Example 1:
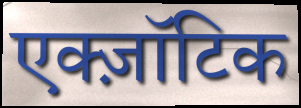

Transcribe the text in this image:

एक्ज़ॉटिक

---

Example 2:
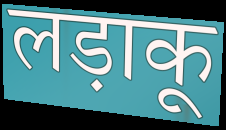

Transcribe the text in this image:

लड़ाकू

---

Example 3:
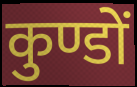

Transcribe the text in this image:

कुण्डों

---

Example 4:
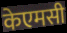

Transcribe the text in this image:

केएमसी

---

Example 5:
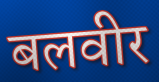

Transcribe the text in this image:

बलवीर